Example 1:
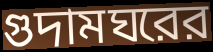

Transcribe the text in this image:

গুদামঘরের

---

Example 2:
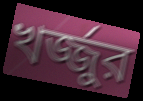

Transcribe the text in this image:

খর্জ্জুর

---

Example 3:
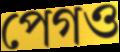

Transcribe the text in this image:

পেগও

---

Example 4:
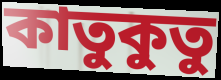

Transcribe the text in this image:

কাতুকুতু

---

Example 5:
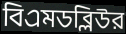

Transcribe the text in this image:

বিএমডব্লিউর